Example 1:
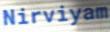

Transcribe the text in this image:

Nirviyam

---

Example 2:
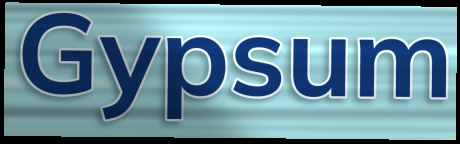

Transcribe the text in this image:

Gypsum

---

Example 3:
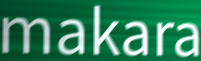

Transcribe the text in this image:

makara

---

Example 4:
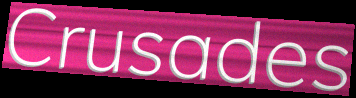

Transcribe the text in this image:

Crusades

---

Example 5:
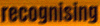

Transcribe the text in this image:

recognising